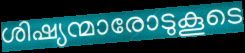
ശിഷ്യന്മാരോടുകൂടെ